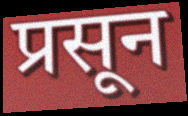
प्रसून